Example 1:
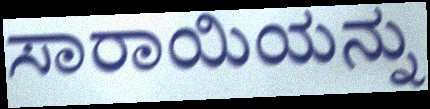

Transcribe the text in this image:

ಸಾರಾಯಿಯನ್ನು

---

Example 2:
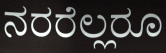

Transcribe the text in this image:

ನರರೆಲ್ಲರೂ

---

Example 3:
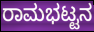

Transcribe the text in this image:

ರಾಮಭಟ್ಟನ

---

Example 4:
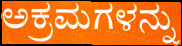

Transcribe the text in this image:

ಅಕ್ರಮಗಳನ್ನು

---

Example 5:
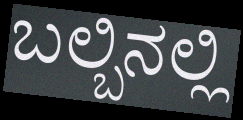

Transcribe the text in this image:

ಬಲ್ಬಿನಲ್ಲಿ